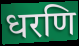
धरणि